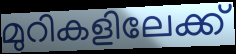
മുറികളിലേക്ക്